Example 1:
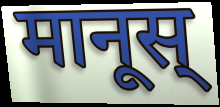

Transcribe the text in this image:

मानूस्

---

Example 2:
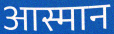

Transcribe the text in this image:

आस्मान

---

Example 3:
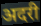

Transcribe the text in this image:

अदरी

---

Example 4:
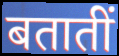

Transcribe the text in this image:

बतातीं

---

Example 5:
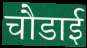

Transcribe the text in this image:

चौडाई